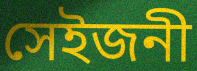
সেইজনী